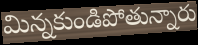
మిన్నకుండిపోతున్నారు